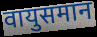
वायुसमान